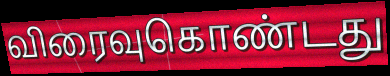
விரைவுகொண்டது